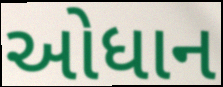
ઓધાન